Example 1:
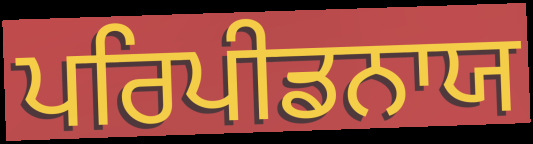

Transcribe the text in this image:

ਪਰਿਪੀਡਨਾਯ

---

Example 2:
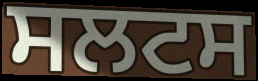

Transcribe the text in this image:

ਸਲਟਸ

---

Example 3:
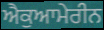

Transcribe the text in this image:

ਐਕੁਆਮੇਰੀਨ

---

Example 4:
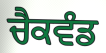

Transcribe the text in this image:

ਚੈਕਵੰਡ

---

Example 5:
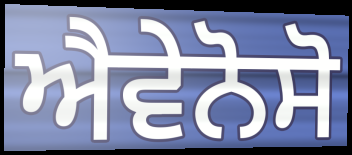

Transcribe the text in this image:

ਐਵੇਨੋਸੋ